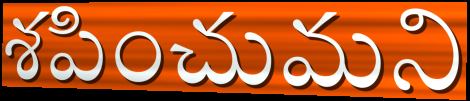
శపించుమని